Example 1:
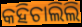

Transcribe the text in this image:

କହିଚାଲିଲି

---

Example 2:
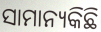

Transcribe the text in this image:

ସାମାନ୍ୟକିଛି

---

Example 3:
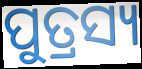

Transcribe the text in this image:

ପୁତ୍ରସ୍ୟ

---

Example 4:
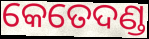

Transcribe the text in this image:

କେତେଦଣ୍ଡ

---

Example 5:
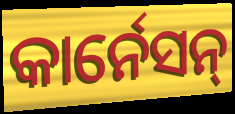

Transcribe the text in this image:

କାର୍ନେସନ୍